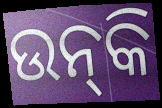
ଉନ୍‌କି